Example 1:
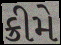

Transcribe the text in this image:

ક્રીમે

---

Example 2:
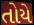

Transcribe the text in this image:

તોયે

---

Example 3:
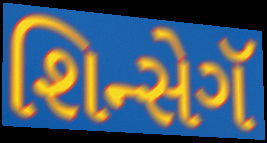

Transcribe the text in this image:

શિન્સેગૅ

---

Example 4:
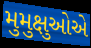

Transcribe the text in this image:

મુમુક્ષુઓએ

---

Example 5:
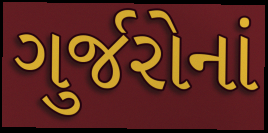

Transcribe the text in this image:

ગુર્જરોનાં